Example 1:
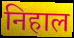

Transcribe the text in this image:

निहाल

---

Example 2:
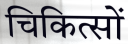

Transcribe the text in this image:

चिकित्सों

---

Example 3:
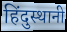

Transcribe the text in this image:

हिंदुस्थानी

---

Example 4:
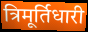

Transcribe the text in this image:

त्रिमूर्तिधारी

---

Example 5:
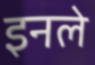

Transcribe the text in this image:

इनले